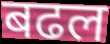
बढल